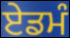
ਏਡਮੰ